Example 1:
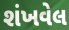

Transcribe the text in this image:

શંખવેલ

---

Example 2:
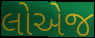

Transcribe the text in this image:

લોએજ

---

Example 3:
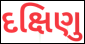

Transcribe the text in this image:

દક્ષિણુ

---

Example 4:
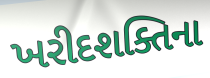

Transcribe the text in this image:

ખરીદશક્તિના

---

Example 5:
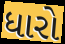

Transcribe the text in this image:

ધારો